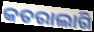
କତରାଲାଗି